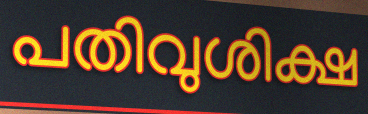
പതിവുശിക്ഷ